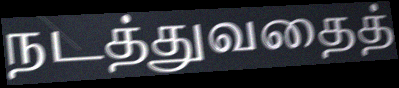
நடத்துவதைத்